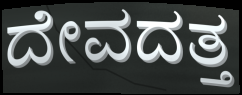
ದೇವದತ್ತ